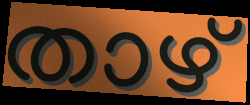
താഴ്